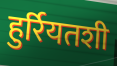
हुर्रियतशी